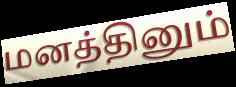
மனத்தினும்